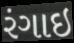
રંગાઇ